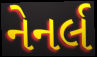
નેનર્લ